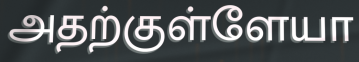
அதற்குள்ளேயா